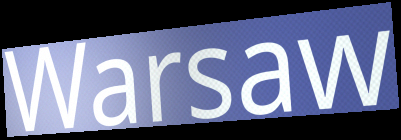
Warsaw